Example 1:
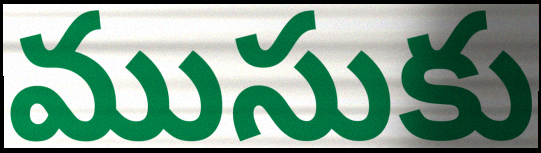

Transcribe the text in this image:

ముసుకు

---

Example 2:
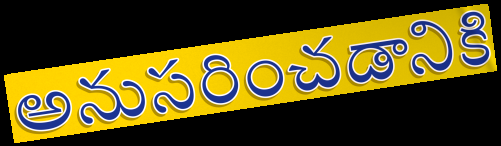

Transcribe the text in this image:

అనుసరించడానికి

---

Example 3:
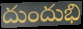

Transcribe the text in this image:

దుందుభి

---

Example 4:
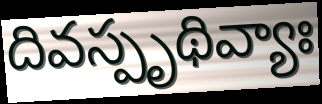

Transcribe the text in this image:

దివస్పృథివ్యాః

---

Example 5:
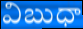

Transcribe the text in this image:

విబుధా